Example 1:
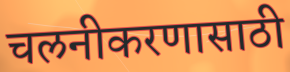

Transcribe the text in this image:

चलनीकरणासाठी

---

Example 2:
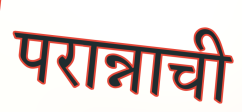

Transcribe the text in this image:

परान्नाची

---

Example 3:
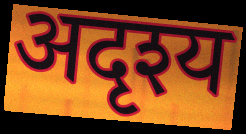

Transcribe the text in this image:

अदृश्य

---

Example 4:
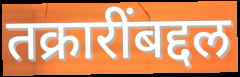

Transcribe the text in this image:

तक्रारींबद्दल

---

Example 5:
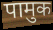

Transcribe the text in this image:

पामुक